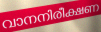
വാനനിരീക്ഷണ